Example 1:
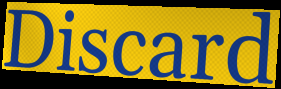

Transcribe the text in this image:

Discard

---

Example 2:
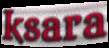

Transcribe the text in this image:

ksara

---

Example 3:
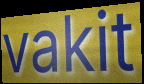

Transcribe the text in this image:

vakit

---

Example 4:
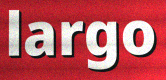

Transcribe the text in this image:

largo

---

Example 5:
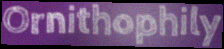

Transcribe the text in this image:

Ornithophily